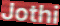
Jothi